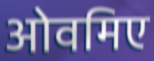
ओवमिए